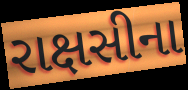
રાક્ષસીના